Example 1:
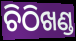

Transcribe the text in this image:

ଚିଠିଖଣ୍ଡ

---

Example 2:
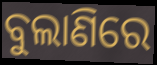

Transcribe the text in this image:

ବୁଲାଣିରେ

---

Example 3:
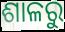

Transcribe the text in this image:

ଶାଳରୁ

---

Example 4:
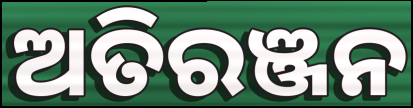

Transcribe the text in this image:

ଅତିରଞ୍ଜନ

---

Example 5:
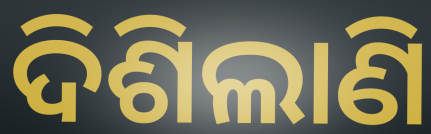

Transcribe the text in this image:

ଦିଶିଲାଣି